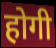
होगी